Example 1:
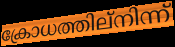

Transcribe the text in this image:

ക്രോധത്തില്നിന്ന്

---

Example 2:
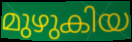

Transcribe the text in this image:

മുഴുകിയ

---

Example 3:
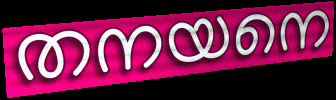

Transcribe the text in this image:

തനയനെ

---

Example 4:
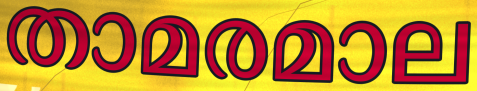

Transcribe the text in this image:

താമരമാല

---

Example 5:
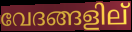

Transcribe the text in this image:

വേദങ്ങളില്